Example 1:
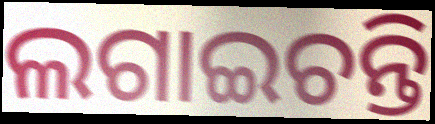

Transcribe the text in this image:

ଲଗାଇଚନ୍ତି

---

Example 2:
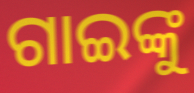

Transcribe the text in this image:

ଗାଇଙ୍କୁ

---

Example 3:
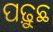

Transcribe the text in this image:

ପଢ଼ୁଛ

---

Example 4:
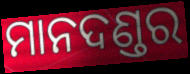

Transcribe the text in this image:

ମାନଦଣ୍ଡର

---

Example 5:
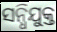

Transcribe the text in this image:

ସନ୍ଧିଯୁକ୍ତ